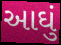
આઘું